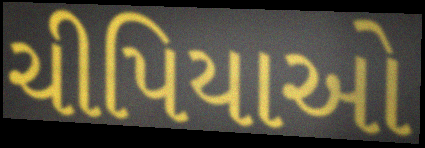
ચીપિયાઓ